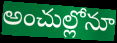
అంచుల్లోనూ